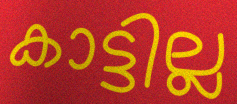
കാട്ടില്ല